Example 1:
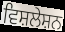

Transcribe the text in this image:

ਵਿਸ਼ਲੇਸ਼ਨ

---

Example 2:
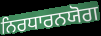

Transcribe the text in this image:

ਨਿਰਧਾਰਨਯੋਗ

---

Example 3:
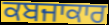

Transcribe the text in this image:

ਕਬਜਾਕਾਰ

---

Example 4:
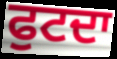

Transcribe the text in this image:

ਫੁਟਦਾ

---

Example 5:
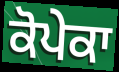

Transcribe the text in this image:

ਕੋਪੇਕਾ